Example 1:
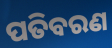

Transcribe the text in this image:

ପତିବରଣ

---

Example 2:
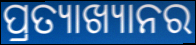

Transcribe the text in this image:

ପ୍ରତ୍ୟାଖ୍ୟାନର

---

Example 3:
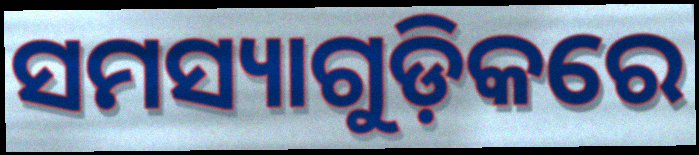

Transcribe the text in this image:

ସମସ୍ୟାଗୁଡ଼ିକରେ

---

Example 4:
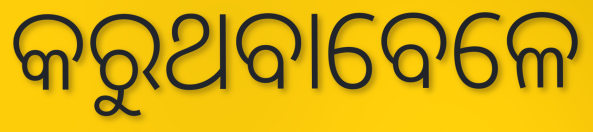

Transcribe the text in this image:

କରୁଥବାବେଳେ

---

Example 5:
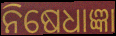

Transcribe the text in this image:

ନିଷେଧାଜ୍ଞା